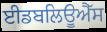
ਈਡਬਲਿਊਐੱਸ